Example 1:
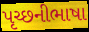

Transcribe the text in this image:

પૃચ્છનીભાષા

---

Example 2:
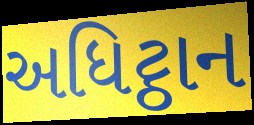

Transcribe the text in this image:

અધિટ્ઠાન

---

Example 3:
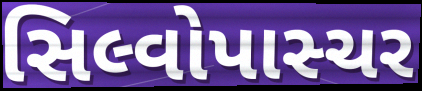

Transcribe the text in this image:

સિલ્વોપાસ્ચર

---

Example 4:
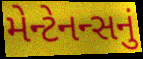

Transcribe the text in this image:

મેન્ટેનન્સનું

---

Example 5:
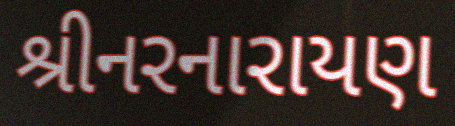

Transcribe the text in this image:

શ્રીનરનારાયણ